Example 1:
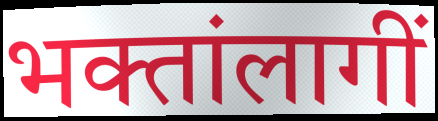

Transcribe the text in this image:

भक्तांलागीं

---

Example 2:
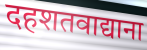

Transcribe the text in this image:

दहशतवाद्याना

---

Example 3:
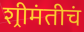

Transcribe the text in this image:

श्रीमंतीचं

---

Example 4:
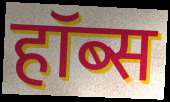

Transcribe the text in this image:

हॉब्स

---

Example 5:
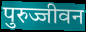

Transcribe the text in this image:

पुरुज्जीवन